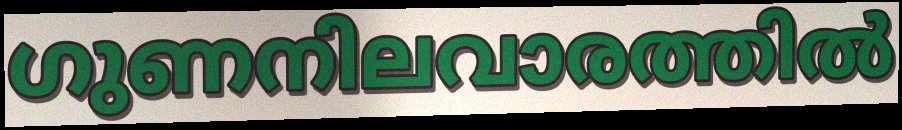
ഗുണനിലവാരത്തിൽ